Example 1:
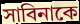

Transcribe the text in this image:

সাবিনাকে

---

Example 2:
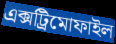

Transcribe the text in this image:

এক্সট্রিমোফাইল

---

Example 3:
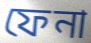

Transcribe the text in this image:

ফেনা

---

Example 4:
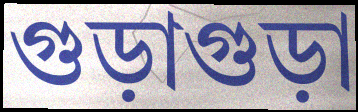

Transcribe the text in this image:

গুড়াগুড়া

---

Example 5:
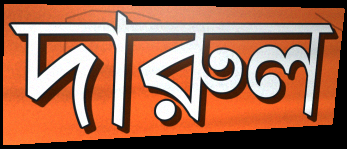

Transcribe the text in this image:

দারুল